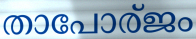
താപോര്ജം